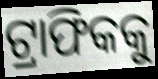
ଟ୍ରାଫିକକୁ